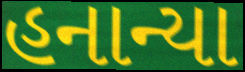
હનાન્યા